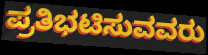
ಪ್ರತಿಭಟಿಸುವವರು